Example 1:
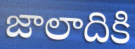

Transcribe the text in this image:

జాలాదికి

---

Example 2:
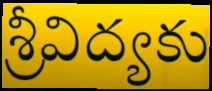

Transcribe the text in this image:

శ్రీవిద్యకు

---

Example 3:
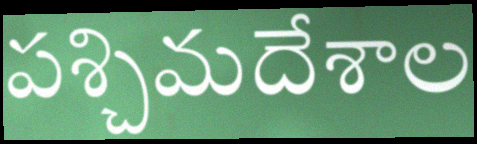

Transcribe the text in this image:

పశ్చిమదేశాల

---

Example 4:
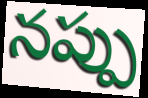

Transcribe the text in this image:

నప్పు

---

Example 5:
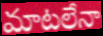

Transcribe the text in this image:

మాటలేనా